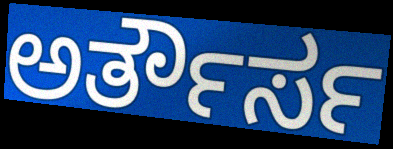
ಅರ್ತೌರ್ಸ